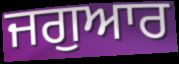
ਜਗੁਆਰ